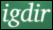
igdir